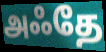
அஃதே